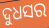
ଦୁଧସର